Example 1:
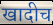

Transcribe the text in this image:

खादीच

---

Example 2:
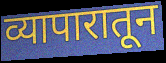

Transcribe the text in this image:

व्यापारातून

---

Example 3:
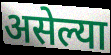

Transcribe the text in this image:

असेल्या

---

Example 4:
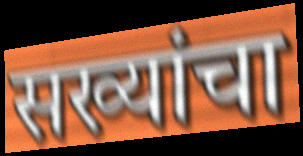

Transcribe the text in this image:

सख्यांचा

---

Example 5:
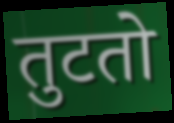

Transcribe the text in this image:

तुटतो